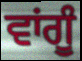
ਵਾਂਗੂੰ